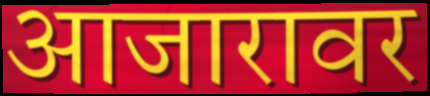
आजारावर